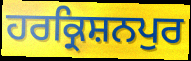
ਹਰਕ੍ਰਿਸ਼ਨਪੁਰ